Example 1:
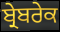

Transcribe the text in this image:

ਬ੍ਰੇਬਰੇਕ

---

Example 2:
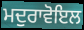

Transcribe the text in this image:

ਮਦੁਰਾਵੋਇਲ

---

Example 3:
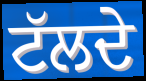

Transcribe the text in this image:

ਟੱਲਦੇ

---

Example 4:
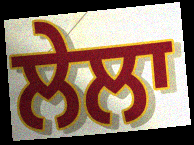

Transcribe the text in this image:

ਲੇਲਾ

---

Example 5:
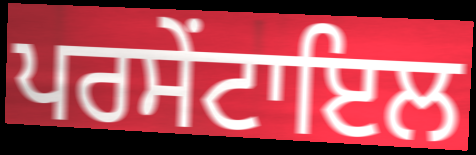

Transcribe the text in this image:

ਪਰਸੇਂਟਾਇਲ